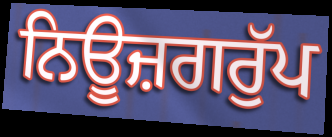
ਨਿਊਜ਼ਗਰੁੱਪ